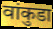
वांकुडा